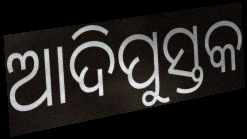
ଆଦିପୁସ୍ତକ